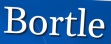
Bortle